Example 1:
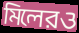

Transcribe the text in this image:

মিলেরও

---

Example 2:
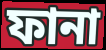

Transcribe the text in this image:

ফানা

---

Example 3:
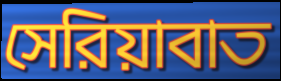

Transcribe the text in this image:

সেরিয়াবাত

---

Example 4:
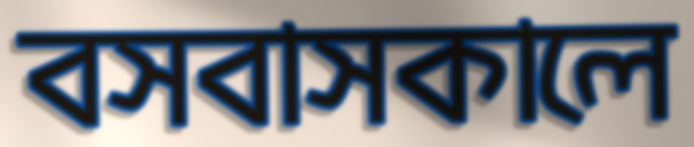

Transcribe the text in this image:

বসবাসকালে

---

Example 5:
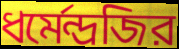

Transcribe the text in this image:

ধর্মেন্দ্রজির